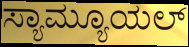
ಸ್ಯಾಮ್ಯೂಯಲ್